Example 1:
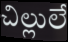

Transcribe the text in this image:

చిల్లులే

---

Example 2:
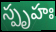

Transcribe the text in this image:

స్పృహః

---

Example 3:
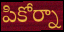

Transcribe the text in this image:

పికోర్నా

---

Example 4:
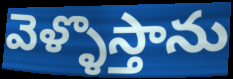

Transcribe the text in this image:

వెళ్ళొస్తాను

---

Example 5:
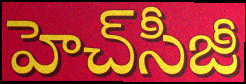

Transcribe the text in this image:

హెచ్‌సీజీ